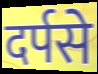
दर्पसे